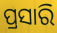
ପ୍ରସାରି